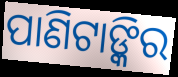
ପାଣିଟାଙ୍କିର